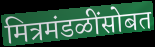
मित्रमंडळींसोबत